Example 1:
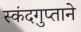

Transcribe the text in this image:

स्कंदगुप्ताने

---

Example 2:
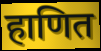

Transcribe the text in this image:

हाणित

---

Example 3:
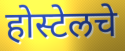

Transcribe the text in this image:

होस्टेलचे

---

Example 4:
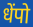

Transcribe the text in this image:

धेंपो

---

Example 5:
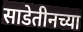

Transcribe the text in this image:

साडेतीनच्या